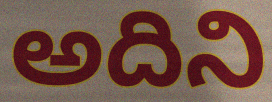
అదిని